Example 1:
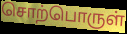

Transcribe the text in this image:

சொற்பொருள்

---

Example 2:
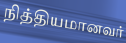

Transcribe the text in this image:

நித்தியமானவர்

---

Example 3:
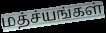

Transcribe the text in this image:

மத்ச்யங்கள்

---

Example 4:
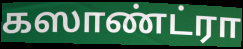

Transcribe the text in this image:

கஸாண்ட்ரா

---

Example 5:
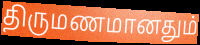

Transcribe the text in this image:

திருமணமானதும்